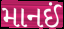
માનઈં